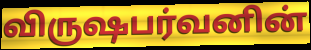
விருஷபர்வனின்